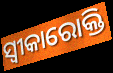
ସ୍ୱୀକାରୋକ୍ତି